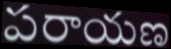
పరాయణ